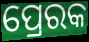
ପ୍ରେରକ